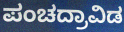
ಪಂಚದ್ರಾವಿಡ